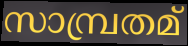
സാമ്പ്രതമ്